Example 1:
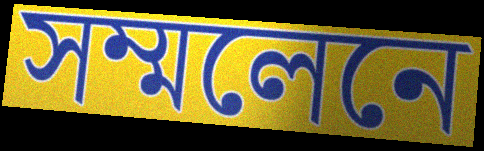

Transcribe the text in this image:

সম্মলেনে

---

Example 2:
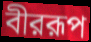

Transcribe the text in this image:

বীররূপ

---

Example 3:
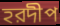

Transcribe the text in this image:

হরদীপ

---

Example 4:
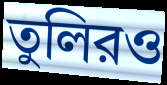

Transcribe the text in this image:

তুলিরও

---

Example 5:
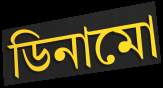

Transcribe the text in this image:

ডিনামো